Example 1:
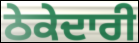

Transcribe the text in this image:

ਠੇਕੇਦਾਰੀ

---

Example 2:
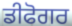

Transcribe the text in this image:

ਡੀਫੋਗਰ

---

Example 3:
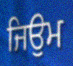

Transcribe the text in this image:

ਜਿਉਮ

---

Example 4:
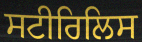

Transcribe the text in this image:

ਸਟੀਰਿਲਿਸ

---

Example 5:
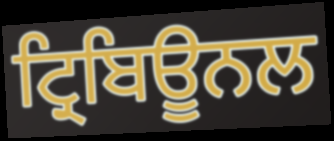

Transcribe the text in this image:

ਟ੍ਰਿਬਿਊਨਲ